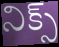
నిక్స్